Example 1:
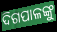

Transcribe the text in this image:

ଦିଗପାଳଙ୍କୁ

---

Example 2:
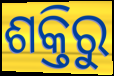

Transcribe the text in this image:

ଶକ୍ତିରୁ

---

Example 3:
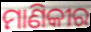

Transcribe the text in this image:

ମାଣିକୀର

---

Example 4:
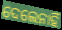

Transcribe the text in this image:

ଦେଲେନାହିଁ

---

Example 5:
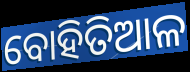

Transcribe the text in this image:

ବୋହିତିଆଳ